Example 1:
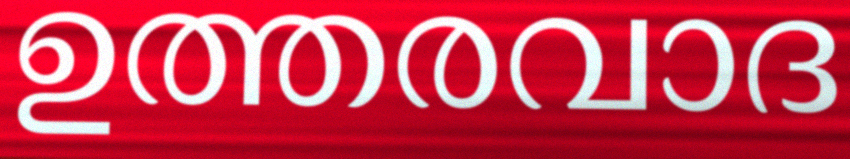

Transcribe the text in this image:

ഉത്തരവാദ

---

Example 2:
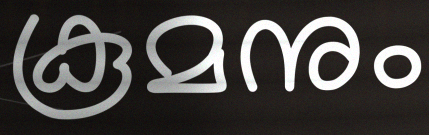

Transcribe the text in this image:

കൂമനും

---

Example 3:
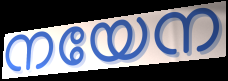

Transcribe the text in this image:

നയേന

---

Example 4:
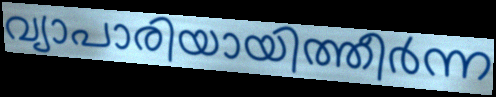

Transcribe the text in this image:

വ്യാപാരിയായിത്തീർന്ന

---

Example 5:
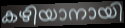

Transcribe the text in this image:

കഴിയാനായി